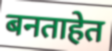
बनताहेत